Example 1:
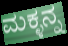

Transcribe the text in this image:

ಮಕ್ಳನ್ನ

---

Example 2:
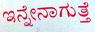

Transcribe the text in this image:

ಇನ್ನೇನಾಗುತ್ತೆ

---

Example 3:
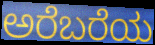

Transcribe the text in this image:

ಅರೆಬರೆಯ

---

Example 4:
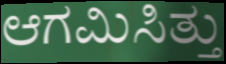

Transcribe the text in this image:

ಆಗಮಿಸಿತ್ತು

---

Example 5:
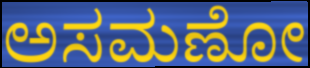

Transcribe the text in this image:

ಅಸಮಣೋ